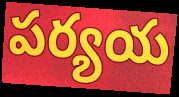
పర్యయ